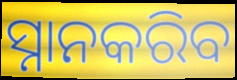
ସ୍ନାନକରିବ